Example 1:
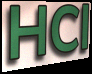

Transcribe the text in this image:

HCl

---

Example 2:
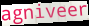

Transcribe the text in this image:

agniveer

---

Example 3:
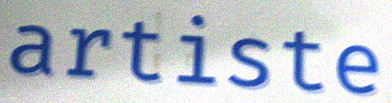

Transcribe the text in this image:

artiste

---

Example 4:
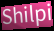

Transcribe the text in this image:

Shilpi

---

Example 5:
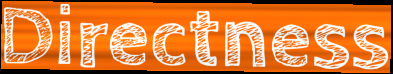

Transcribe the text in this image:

Directness